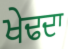
ਖੇਢਦਾ